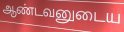
ஆண்டவனுடைய